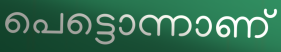
പെട്ടൊന്നാണ്